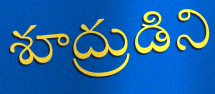
శూద్రుడిని